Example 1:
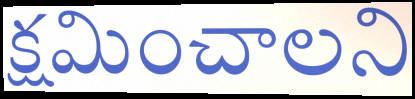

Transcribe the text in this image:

క్షమించాలని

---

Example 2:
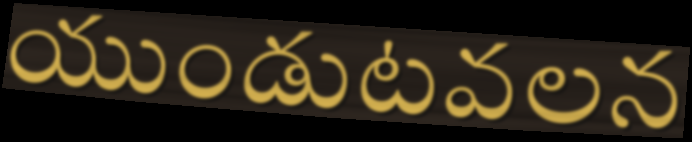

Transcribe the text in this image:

యుండుటవలన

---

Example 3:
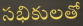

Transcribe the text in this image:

సభికులతో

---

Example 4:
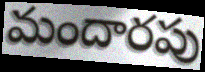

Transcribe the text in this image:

మందారపు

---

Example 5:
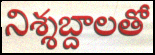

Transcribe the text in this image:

నిశ్శబ్దాలతో